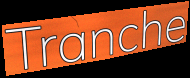
Tranche